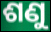
ଶଣୁ